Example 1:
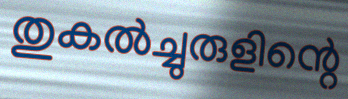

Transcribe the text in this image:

തുകൽച്ചുരുളിന്റെ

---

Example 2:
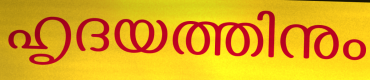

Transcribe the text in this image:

ഹൃദയത്തിനും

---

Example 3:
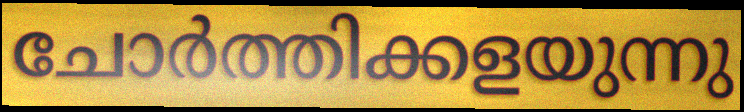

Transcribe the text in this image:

ചോർത്തിക്കളയുന്നു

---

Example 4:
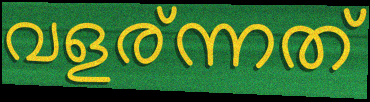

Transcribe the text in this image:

വളര്ന്നത്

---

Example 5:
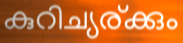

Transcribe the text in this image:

കുറിച്യര്ക്കും